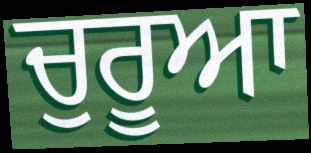
ਚੁਰੂਆ